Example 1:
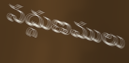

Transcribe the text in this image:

సద్గుణములు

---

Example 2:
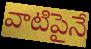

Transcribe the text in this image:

వాటిపైనే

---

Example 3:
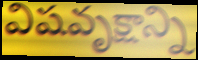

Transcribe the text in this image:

విషవృక్షాన్ని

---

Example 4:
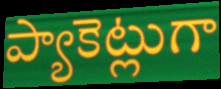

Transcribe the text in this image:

ప్యాకెట్లుగా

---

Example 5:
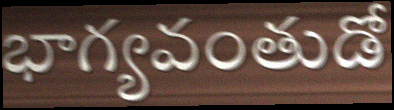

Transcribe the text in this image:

భాగ్యవంతుడో